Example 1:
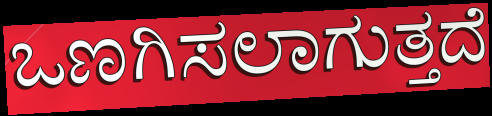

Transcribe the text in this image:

ಒಣಗಿಸಲಾಗುತ್ತದೆ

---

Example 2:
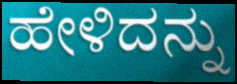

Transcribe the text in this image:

ಹೇಳಿದನ್ನು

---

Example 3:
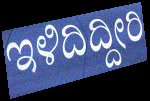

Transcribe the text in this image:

ಇಳಿದಿದ್ದೀರಿ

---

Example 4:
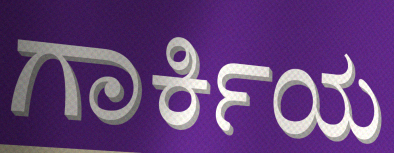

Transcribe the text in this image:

ಗಾರ್ಕಿಯ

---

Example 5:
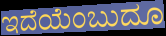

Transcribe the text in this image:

ಇದೆಯೆಂಬುದೂ